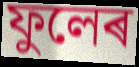
ফুলেৰ